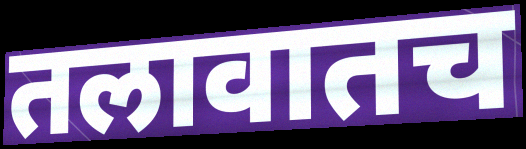
तलावातच